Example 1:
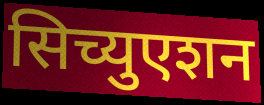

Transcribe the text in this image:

सिच्युएशन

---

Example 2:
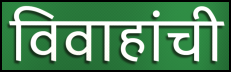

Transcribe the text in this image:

विवाहांची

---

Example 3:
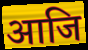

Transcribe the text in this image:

आजि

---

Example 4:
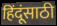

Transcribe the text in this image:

हिंदूंसाठी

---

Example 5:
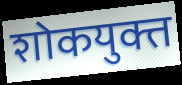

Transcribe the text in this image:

शोकयुक्त